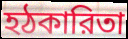
হঠকারিতা